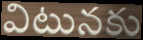
విటునకు